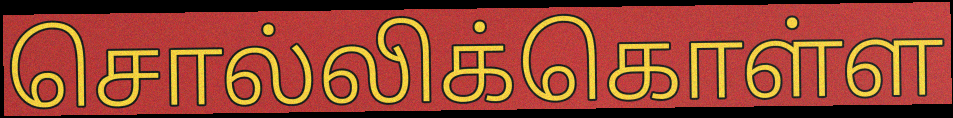
சொல்லிக்கொள்ள